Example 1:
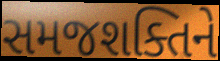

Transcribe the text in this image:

સમજશક્તિને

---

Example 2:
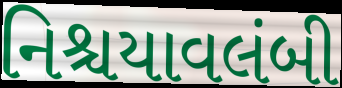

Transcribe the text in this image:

નિશ્ચયાવલંબી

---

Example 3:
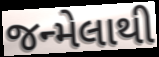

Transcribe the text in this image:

જન્મેલાથી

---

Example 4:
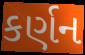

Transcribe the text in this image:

કર્ણન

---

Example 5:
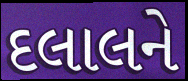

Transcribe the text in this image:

દલાલને